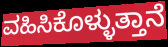
ವಹಿಸಿಕೊಳ್ಳುತ್ತಾನೆ